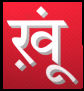
ख़ूं